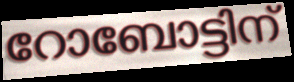
റോബോട്ടിന്